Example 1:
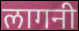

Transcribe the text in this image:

लागनी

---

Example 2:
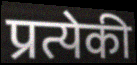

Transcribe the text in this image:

प्रत्येकी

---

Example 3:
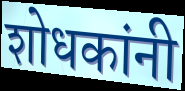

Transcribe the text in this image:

शोधकांनी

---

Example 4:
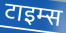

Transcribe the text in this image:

टाइम्स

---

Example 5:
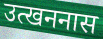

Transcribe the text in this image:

उत्खननास